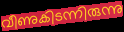
വീണുകിടന്നിരുന്നു